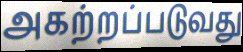
அகற்றப்படுவது